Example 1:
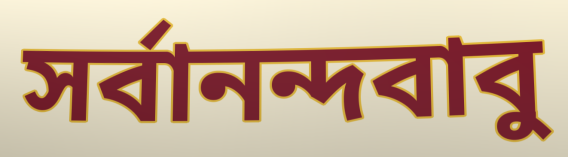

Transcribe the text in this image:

সর্বানন্দবাবু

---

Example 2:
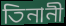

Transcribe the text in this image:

তিনানী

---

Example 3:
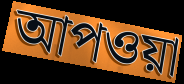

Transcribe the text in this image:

আপওয়া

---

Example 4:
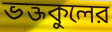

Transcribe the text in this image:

ভক্তকুলের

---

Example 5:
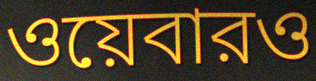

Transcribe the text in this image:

ওয়েবারও